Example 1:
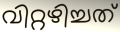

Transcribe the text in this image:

വിറ്റഴിച്ചത്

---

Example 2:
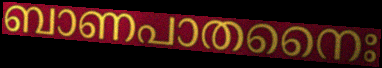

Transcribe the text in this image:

ബാണപാതനൈഃ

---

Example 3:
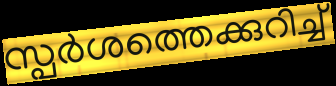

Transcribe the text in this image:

സ്പർശത്തെക്കുറിച്ച്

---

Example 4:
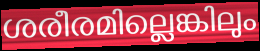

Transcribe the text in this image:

ശരീരമില്ലെങ്കിലും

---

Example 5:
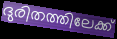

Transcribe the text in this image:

ദുരിതത്തിലേക്ക്